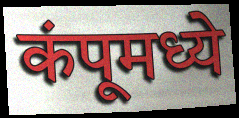
कंपूमध्ये